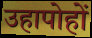
उहापोहों